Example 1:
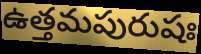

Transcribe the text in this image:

ఉత్తమపురుషః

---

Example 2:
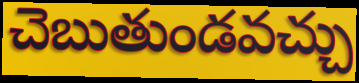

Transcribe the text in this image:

చెబుతుండవచ్చు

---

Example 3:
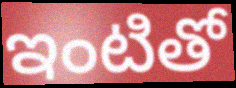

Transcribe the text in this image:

ఇంటితో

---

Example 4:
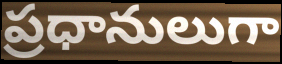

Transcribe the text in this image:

ప్రధానులుగా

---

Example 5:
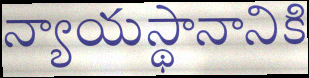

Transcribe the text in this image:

న్యాయస్థానానికి